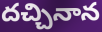
దచ్చినాన